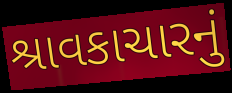
શ્રાવકાચારનું